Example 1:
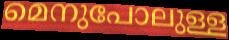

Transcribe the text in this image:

മെനുപോലുള്ള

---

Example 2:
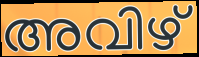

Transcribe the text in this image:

അവിഴ്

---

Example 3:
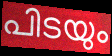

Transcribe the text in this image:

പിടയും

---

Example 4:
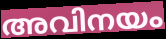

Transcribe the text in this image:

അവിനയം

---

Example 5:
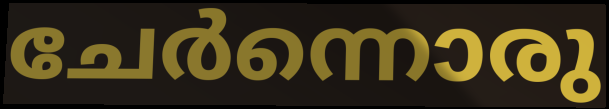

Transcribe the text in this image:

ചേർന്നൊരു